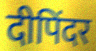
दीपिंदर